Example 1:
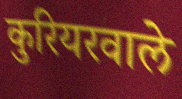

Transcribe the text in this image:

कुरियरवाले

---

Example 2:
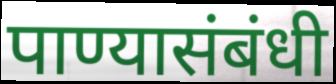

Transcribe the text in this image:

पाण्यासंबंधी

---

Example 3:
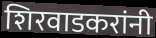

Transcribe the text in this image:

शिरवाडकरांनी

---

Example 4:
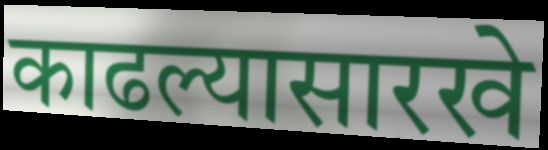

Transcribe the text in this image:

काढल्यासारखे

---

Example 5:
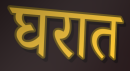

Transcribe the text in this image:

घरात